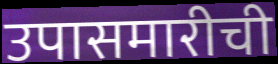
उपासमारीची